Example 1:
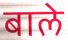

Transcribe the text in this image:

बाले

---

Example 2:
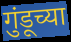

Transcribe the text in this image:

गुंडूच्या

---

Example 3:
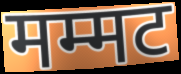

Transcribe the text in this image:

मम्मट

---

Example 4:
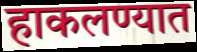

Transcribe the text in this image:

हाकलण्यात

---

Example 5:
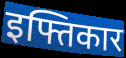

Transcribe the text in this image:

इफ्तिकार